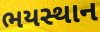
ભયસ્થાન